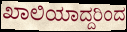
ಖಾಲಿಯಾದ್ದರಿಂದ